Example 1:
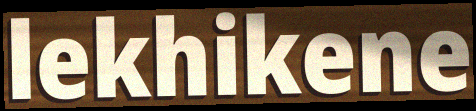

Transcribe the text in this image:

lekhikene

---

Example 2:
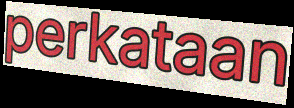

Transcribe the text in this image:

perkataan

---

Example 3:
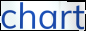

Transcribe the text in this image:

chart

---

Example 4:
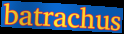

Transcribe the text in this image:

batrachus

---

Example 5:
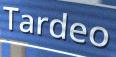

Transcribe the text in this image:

Tardeo